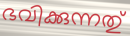
ഭവിക്കുന്നതു്